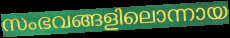
സംഭവങ്ങളിലൊന്നായ